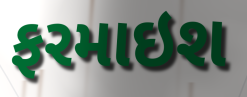
ફરમાઇશ